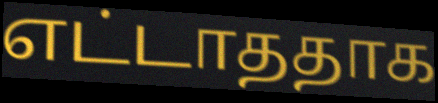
எட்டாததாக